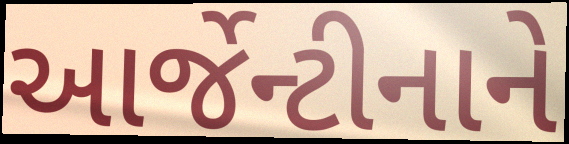
આર્જેન્ટીનાને